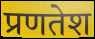
प्रणतेश